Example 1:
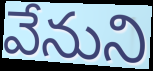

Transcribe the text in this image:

వేనుని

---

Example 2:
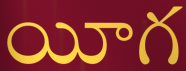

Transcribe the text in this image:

యీగ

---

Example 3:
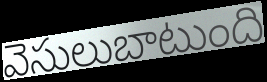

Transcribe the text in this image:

వెసులుబాటుంది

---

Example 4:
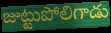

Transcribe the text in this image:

జుట్టుపోలిగాడు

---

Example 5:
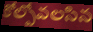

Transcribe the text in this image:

కోల్పోవలసిన